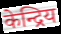
केन्द्रिय